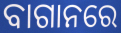
ବାଗାନରେ